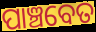
ପାଞ୍ଚବେତ